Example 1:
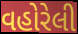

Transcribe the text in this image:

વહોરેલી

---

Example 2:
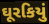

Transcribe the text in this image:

ઘૂરકિયું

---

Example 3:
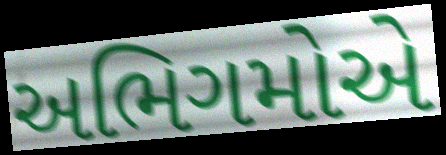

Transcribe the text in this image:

અભિગમોએ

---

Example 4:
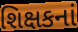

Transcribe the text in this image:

શિક્ષકનાં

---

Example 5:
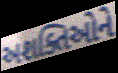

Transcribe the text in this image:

અશક્તિઓને